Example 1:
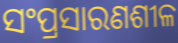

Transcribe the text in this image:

ସଂପ୍ରସାରଣଶୀଳ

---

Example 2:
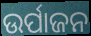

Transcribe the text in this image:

ଉର୍ପାଜନ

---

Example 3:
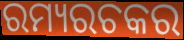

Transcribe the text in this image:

ରମ୍ୟରଚକର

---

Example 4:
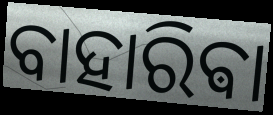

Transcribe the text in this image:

ବାହାରିଵା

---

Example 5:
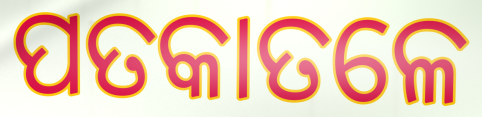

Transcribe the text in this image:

ପତକାତଳେ